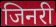
जिनरी